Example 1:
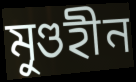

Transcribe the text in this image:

মুণ্ডহীন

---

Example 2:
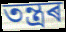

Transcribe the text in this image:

তন্ত্ৰৰ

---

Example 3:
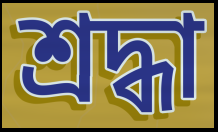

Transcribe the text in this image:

শ্ৰদ্ধা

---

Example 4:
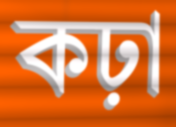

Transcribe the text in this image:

কঢ়া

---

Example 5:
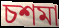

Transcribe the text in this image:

চশমা